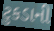
ટુકડાની